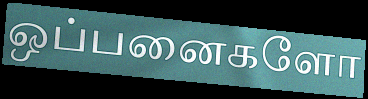
ஒப்பனைகளோ